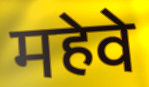
महेवे